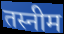
तस्नीम